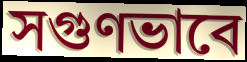
সগুণভাবে